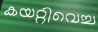
കയറ്റിവെച്ച